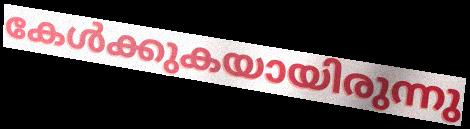
കേൾക്കുകയായിരുന്നു